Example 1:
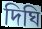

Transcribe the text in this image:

দিঘি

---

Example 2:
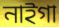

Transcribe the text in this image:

নাইগা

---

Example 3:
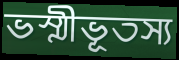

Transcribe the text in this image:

ভস্মীভূতস্য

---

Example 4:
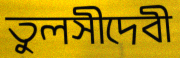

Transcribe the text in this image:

তুলসীদেবী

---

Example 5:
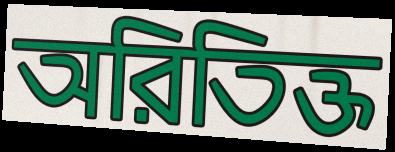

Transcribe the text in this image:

অরিতিক্ত